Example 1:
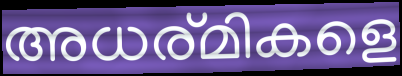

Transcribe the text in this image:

അധര്മികളെ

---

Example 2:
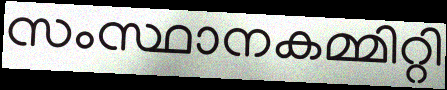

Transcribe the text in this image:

സംസ്ഥാനകമ്മിറ്റി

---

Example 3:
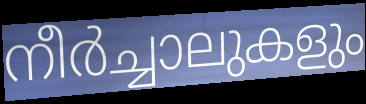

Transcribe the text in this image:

നീർച്ചാലുകളും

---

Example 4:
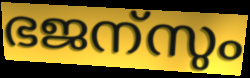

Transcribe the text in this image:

ഭജന്സും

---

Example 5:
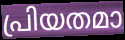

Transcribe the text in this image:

പ്രിയതമാ